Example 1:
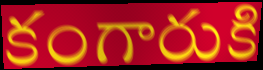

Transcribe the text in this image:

కంగారుకి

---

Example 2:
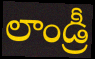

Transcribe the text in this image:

లాండ్రీ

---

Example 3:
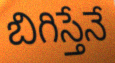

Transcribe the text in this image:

బిగిస్తేనే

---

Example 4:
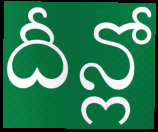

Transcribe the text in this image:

దీన్లో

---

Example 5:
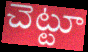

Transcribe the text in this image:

చెట్టూ